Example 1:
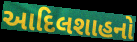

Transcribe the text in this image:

આદિલશાહનો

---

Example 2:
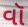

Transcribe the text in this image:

વૉ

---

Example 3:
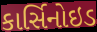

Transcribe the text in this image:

કાર્સિનોઇડ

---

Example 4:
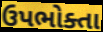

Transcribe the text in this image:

ઉપભોક્તા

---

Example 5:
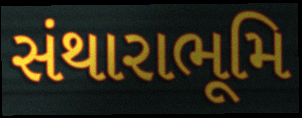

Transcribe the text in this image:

સંથારાભૂમિ